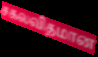
சகலவிதமான